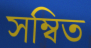
সম্বিত